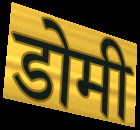
डोमी